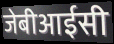
जेबीआईसी